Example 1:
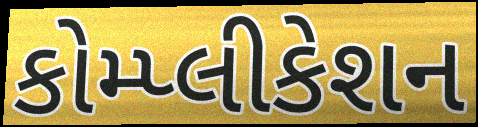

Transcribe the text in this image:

કોમ્પ્લીકેશન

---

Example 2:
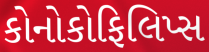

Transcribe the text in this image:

કોનોકોફિલિપ્સ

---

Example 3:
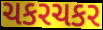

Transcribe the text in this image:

ચકરચકર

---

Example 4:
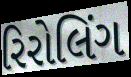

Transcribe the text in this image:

રિરોલિંગ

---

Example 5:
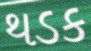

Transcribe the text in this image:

થડક